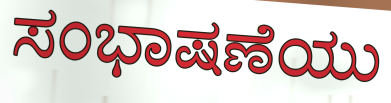
ಸಂಭಾಷಣೆಯು